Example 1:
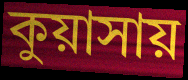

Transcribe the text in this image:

কুয়াসায়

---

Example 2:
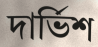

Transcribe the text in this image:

দার্ভিশ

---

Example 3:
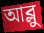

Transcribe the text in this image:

আব্লু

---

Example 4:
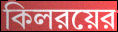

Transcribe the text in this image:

কিলরয়ের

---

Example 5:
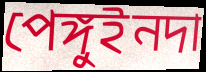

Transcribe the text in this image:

পেঙ্গুইনদা